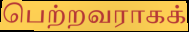
பெற்றவராகக்